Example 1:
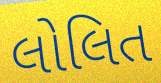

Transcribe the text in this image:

લોલિત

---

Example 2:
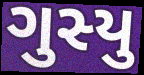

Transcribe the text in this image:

ગુસ્યુ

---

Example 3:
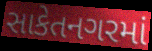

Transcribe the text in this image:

સાકેતનગરમાં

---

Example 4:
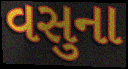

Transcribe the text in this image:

વસુના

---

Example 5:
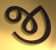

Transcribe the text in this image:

જી